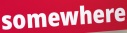
somewhere